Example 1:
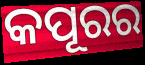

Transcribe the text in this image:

କପୂରର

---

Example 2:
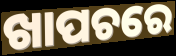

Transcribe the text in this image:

ଖାପଚରେ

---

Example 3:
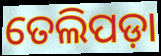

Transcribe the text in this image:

ତେଲିପଡ଼ା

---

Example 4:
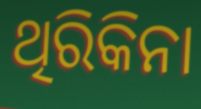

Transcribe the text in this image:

ଥିରିକିନା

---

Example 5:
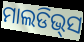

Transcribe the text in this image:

ମାଲଡିଭ୍‌ସ